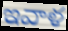
ఇవాళ